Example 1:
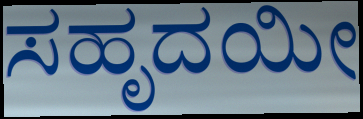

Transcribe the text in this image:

ಸಹೃದಯೀ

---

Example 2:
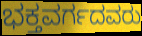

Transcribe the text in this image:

ಭಕ್ತವರ್ಗದವರು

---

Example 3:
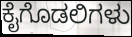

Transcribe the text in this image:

ಕೈಗೊಡಲಿಗಳು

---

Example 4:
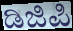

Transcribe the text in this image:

ಡಿಜಿಪಿ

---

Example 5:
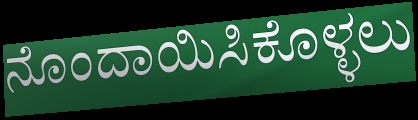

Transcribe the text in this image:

ನೊಂದಾಯಿಸಿಕೊಳ್ಳಲು